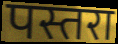
पस्तरा